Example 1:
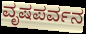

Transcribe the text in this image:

ವೃಷಪರ್ವನ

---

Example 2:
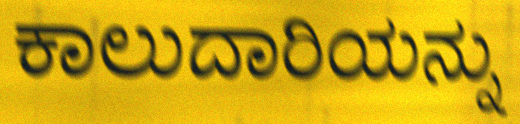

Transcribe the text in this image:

ಕಾಲುದಾರಿಯನ್ನು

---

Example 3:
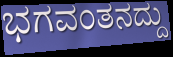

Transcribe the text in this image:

ಭಗವಂತನದ್ದು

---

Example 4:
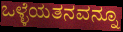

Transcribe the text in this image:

ಒಳ್ಳೆಯತನವನ್ನೂ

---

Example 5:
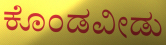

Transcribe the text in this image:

ಕೊಂಡವೀಡು